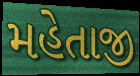
મહેતાજી